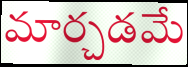
మార్చడమే